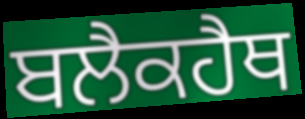
ਬਲੈਕਹੈਥ